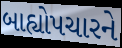
બાહ્યોપચારને